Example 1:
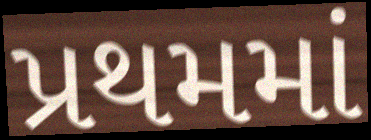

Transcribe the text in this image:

પ્રથમમાં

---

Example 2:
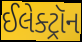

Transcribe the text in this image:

ઈલેક્ટ્રૉન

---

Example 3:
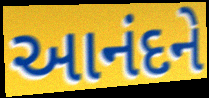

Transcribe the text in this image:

આનંદને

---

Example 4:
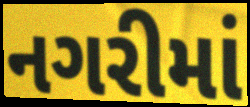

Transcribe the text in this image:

નગરીમાં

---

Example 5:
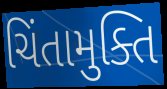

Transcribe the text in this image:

ચિંતામુક્તિ